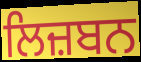
ਲਿਜ਼ਬਨ